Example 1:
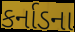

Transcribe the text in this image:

કર્નાડના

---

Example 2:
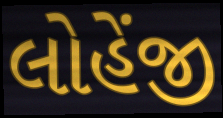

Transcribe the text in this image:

લોહેંજી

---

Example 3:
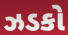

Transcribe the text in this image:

ઝડકો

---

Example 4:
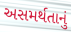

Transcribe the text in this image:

અસમર્થતાનું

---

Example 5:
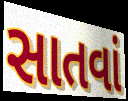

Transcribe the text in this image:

સાતવાં